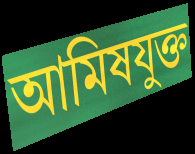
আমিষযুক্ত